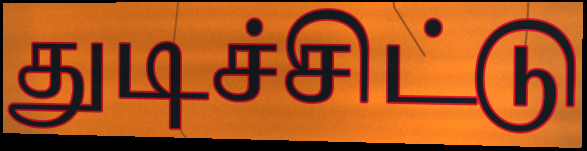
துடிச்சிட்டு